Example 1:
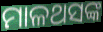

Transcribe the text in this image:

ମାଳଥସଙ୍କ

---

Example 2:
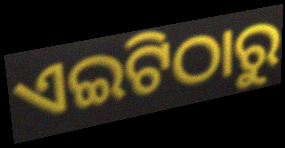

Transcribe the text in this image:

ଏଇଟିଠାରୁ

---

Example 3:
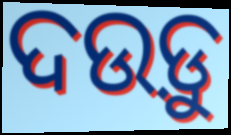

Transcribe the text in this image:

ଦଉଡ଼ୁ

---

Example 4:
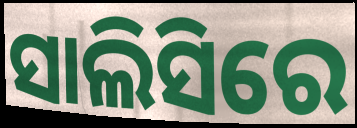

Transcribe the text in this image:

ସାଲିସିରେ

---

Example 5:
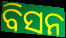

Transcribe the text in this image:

ବିସନ